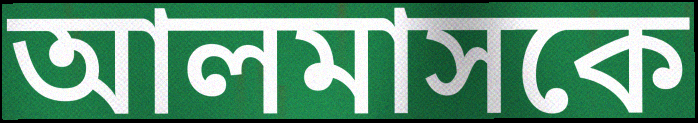
আলমাসকে